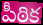
పీఠిక